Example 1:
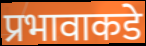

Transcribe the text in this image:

प्रभावाकडे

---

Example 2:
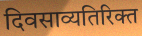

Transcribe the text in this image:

दिवसाव्यतिरिक्त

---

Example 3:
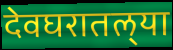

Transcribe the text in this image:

देवघरातल्या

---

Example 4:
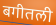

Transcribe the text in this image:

बगीतली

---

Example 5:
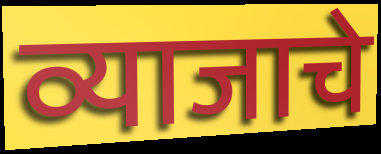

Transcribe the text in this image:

व्याजाचे